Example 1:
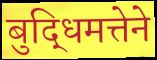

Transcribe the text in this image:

बुद्धिमत्तेने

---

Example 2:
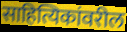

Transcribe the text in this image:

साहित्यिकांवरील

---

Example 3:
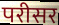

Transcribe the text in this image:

परीसर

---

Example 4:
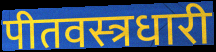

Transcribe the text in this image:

पीतवस्त्रधारी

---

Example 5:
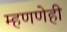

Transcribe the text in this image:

म्हणणेही